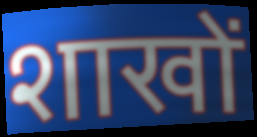
शाखों